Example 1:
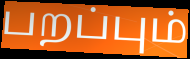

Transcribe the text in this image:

பறப்பும்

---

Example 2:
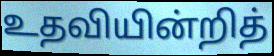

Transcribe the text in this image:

உதவியின்றித்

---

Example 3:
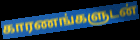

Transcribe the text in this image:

காரணங்களுடன்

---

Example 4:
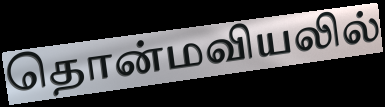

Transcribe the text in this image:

தொன்மவியலில்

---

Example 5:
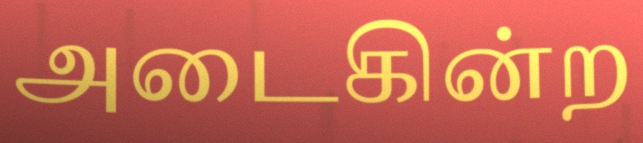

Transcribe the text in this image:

அடைகின்ற